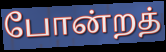
போன்றத்